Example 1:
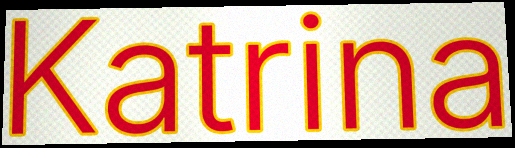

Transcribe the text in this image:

Katrina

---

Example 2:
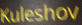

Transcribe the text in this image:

Kuleshov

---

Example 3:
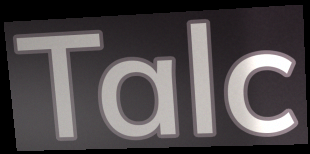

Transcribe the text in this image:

Talc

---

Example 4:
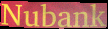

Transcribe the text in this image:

Nubank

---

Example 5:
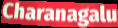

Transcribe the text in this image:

Charanagalu